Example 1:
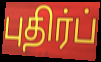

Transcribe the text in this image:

புதிர்ப்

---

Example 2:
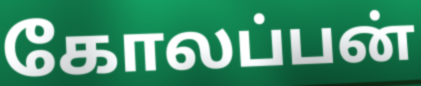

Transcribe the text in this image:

கோலப்பன்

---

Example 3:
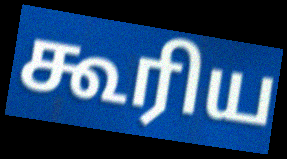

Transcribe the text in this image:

கூரிய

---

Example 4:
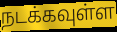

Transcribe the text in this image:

நடக்கவுள்ள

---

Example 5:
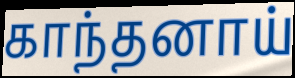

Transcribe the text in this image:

காந்தனாய்